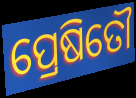
ପ୍ରେଷିତୌ